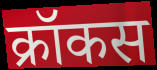
क्रॉकस